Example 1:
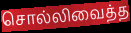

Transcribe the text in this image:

சொல்லிவைத்த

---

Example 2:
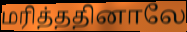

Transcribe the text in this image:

மரித்ததினாலே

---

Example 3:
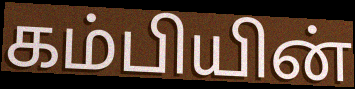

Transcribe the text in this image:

கம்பியின்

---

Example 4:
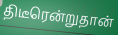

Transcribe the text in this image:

திடீரென்றுதான்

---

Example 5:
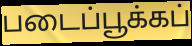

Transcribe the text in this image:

படைப்பூக்கப்